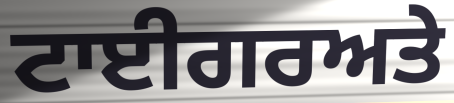
ਟਾਈਗਰਅਤੇ